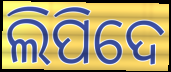
ଲିପିଦେ